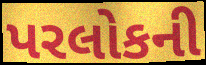
પરલોકની